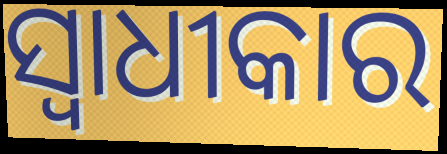
ସ୍ୱାଧୀକାର